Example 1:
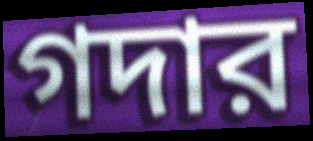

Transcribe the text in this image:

গদার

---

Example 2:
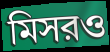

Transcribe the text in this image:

মিসরও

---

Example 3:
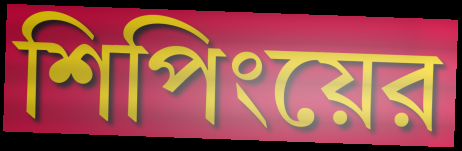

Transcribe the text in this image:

শিপিংয়ের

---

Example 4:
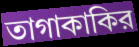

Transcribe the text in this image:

তাগাকাকির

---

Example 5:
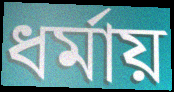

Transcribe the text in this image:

ধর্মায়